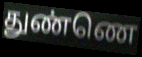
துண்ணெ